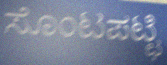
ಸೊಂಟಪಟ್ಟಿ